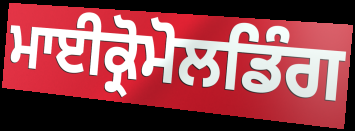
ਮਾਈਕ੍ਰੋਮੋਲਡਿੰਗ